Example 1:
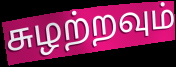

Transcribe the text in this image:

சுழற்றவும்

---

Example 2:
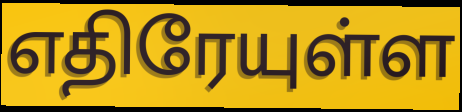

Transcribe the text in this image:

எதிரேயுள்ள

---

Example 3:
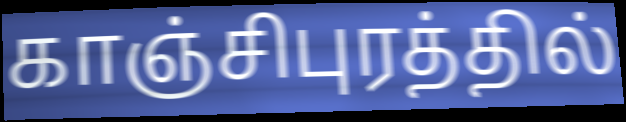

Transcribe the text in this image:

காஞ்சிபுரத்தில்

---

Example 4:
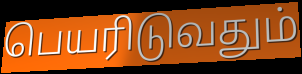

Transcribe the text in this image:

பெயரிடுவதும்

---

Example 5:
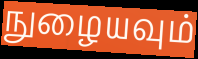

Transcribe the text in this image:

நுழையவும்